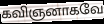
கவிஞனாகவே